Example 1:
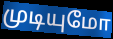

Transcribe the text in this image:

முடியுமோ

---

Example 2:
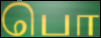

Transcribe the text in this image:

பொ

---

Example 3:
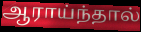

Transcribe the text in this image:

ஆராய்ந்தால்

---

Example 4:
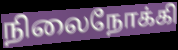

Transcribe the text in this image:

நிலைநோக்கி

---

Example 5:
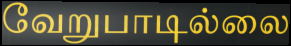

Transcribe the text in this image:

வேறுபாடில்லை